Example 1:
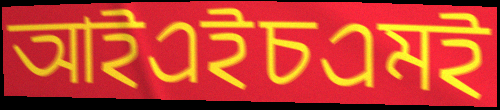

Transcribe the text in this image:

আইএইচএমই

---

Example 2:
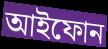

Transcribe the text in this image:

আইফোন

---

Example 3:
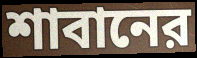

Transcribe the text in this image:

শাবানের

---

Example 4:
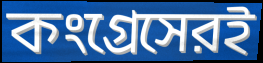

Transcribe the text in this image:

কংগ্রেসেরই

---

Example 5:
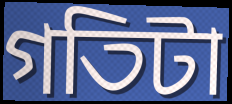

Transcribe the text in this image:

গতিটা